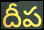
దీప